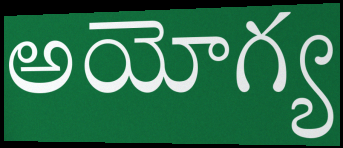
అయోగ్య